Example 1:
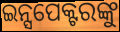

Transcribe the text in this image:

ଇନ୍ସପେକ୍ଟରଙ୍କୁ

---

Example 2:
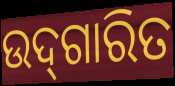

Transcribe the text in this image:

ଉଦ୍‌ଗାରିତ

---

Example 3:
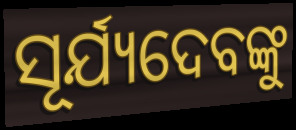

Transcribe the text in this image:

ସୂର୍ଯ୍ୟଦେବଙ୍କୁ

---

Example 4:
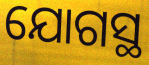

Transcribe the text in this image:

ଯୋଗସ୍ଥ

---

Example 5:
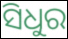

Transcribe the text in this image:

ସିଧୁର